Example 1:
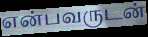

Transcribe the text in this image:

என்பவருடன்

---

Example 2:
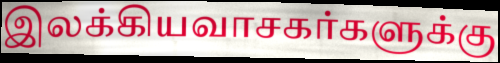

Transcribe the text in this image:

இலக்கியவாசகர்களுக்கு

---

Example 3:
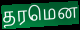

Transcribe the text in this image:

தரமென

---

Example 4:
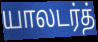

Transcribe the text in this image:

யாலடர்த்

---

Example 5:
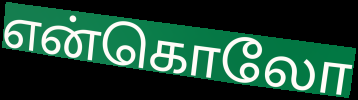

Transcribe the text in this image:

என்கொலோ